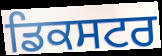
ਡਿਕਸਟਰ